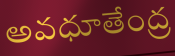
అవధూతేంద్ర